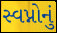
સ્વપ્નોનું